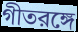
গীতরঙ্গে